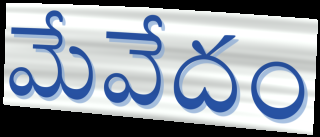
మేవేదం